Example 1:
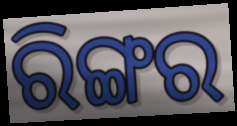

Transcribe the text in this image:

ରିଙ୍ଗର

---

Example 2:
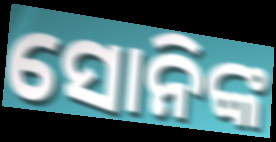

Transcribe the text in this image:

ସୋନିଙ୍କ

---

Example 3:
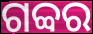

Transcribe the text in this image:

ଗବ୍ବର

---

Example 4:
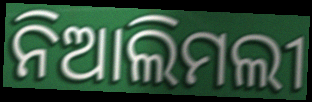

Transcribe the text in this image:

ନିଆଲିମଲୀ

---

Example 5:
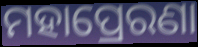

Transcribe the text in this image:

ମହାପ୍ରେରଣା